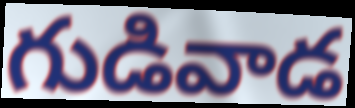
గుడివాడ